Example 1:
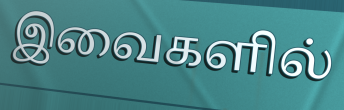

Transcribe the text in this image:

இவைகளில்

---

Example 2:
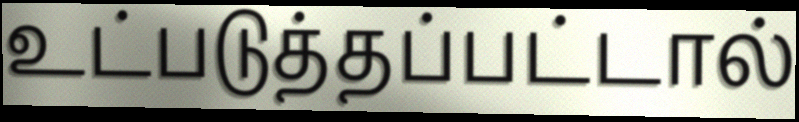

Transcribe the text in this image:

உட்படுத்தப்பட்டால்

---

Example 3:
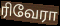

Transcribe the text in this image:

ரிவேரா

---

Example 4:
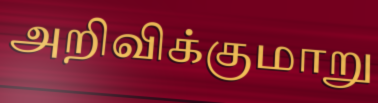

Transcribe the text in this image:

அறிவிக்குமாறு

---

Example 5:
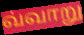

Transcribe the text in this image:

வ்வாறு